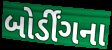
બોર્ડીંગના